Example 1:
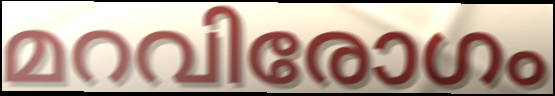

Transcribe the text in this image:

മറവിരോഗം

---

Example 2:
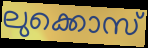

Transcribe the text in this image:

ലുക്കൊസ്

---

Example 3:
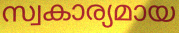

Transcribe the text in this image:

സ്വകാര്യമായ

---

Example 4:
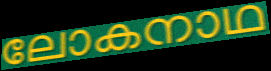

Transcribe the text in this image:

ലോകനാഥ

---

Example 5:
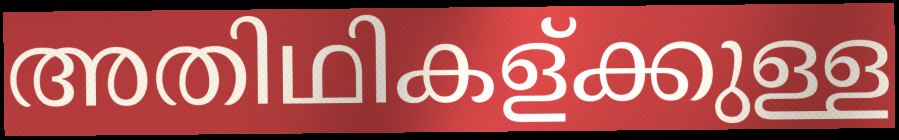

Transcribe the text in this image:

അതിഥികള്ക്കുള്ള